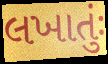
લખાતુંઃ